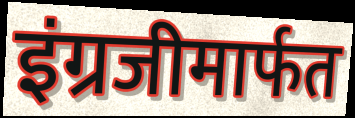
इंग्रजीमार्फत